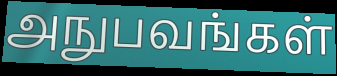
அநுபவங்கள்